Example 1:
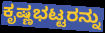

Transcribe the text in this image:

ಕೃಷ್ಣಭಟ್ಟರನ್ನು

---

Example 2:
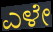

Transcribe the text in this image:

ಎಳೇ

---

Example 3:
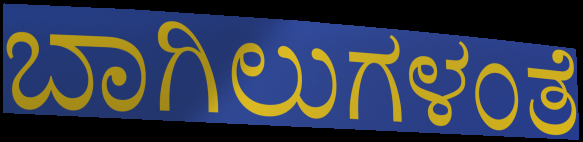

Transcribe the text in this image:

ಬಾಗಿಲುಗಳಂತೆ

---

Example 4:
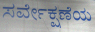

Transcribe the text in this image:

ಸರ್ವೇಕ್ಷಣೆಯ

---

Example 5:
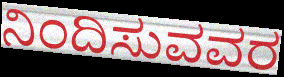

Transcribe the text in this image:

ನಿಂದಿಸುವವರ